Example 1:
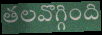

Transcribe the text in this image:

తలవొగ్గింది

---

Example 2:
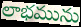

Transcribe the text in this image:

లాభమును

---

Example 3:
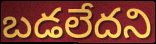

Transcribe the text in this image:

బడలేదని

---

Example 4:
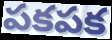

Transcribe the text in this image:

పకపక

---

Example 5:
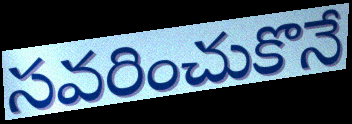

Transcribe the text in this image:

సవరించుకొనే